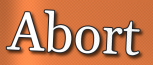
Abort